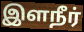
இளநீர்